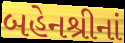
બહેનશ્રીનાં